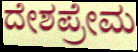
ದೇಶಪ್ರೇಮ